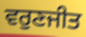
ਵਰੁਣਜੀਤ